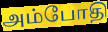
அம்போதி